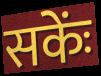
सकेंः